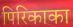
पिरिकाका